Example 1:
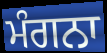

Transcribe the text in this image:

ਮੰਗਨਾ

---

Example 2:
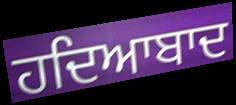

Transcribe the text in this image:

ਹਦਿਆਬਾਦ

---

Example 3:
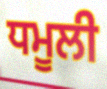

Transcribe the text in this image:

ਧਮੂਲੀ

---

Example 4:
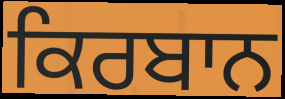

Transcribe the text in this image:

ਕਿਰਬਾਨ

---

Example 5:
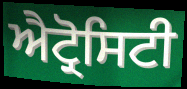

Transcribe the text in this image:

ਐਟ੍ਰੋਸਿਟੀ